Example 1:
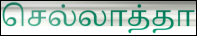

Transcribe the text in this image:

செல்லாத்தா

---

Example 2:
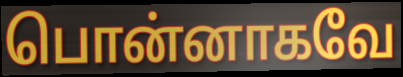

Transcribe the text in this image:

பொன்னாகவே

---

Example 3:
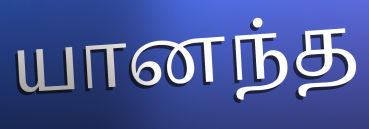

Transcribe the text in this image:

யானந்த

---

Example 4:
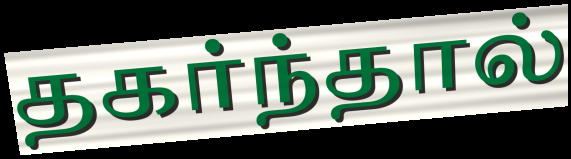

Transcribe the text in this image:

தகர்ந்தால்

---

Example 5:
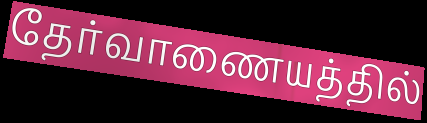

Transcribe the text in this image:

தேர்வாணையத்தில்